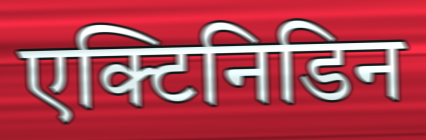
एक्टिनिडिन